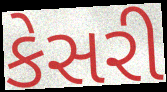
કેસરી